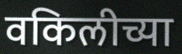
वकिलीच्या